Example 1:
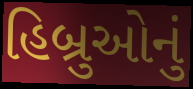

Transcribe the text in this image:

હિબ્રુઓનું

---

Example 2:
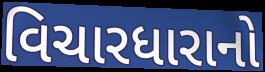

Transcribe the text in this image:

વિચારધારાનો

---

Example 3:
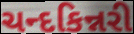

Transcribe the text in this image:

ચન્દકિન્નરી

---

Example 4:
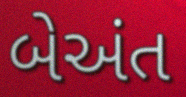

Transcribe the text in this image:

બેઅંત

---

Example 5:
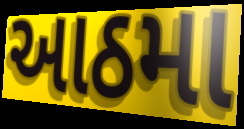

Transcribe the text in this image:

આઠમા